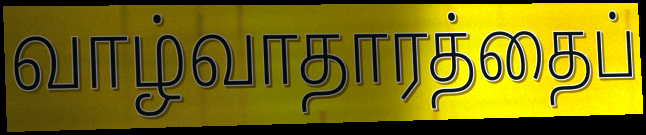
வாழ்வாதாரத்தைப்